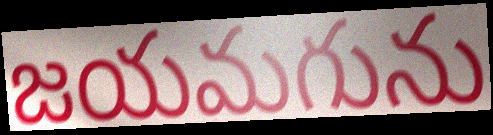
జయమగును